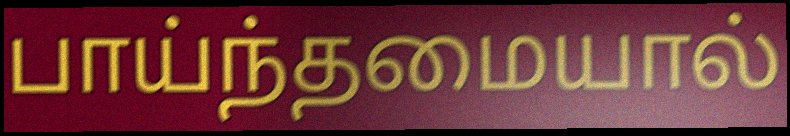
பாய்ந்தமையால்